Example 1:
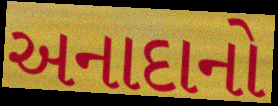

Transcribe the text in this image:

અનાદાનો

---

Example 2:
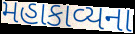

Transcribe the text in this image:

મહાકાવ્યના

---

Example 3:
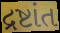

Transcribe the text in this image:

દ્રષ્ટાંત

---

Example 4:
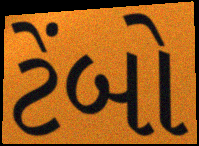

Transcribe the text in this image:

ટેંબો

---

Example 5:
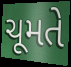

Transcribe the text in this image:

ચૂમતે